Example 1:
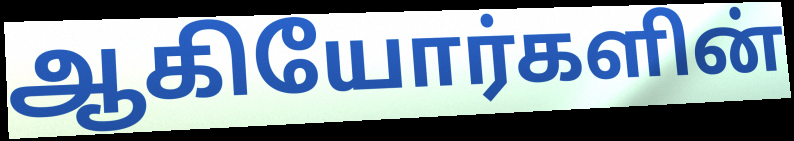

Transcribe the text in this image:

ஆகியோர்களின்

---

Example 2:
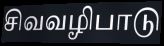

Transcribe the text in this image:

சிவவழிபாடு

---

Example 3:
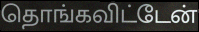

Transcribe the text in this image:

தொங்கவிட்டேன்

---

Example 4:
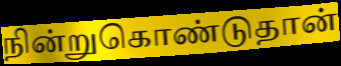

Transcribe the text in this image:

நின்றுகொண்டுதான்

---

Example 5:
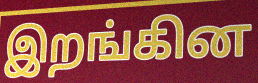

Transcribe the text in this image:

இறங்கின